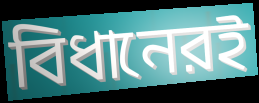
বিধানেরই